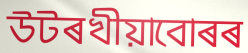
উটৰখীয়াবোৰৰ